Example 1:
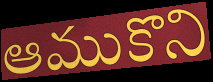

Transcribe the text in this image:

ఆముకొని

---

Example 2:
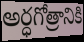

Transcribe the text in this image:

అర్ధగోత్రానికి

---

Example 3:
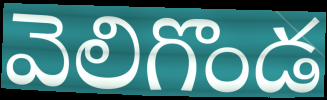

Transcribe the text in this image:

వెలిగొండ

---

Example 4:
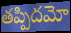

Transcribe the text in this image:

తప్పిదమో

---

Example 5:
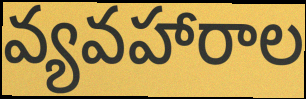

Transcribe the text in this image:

వ్యవహారాల